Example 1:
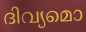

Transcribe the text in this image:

ദിവ്യമൊ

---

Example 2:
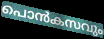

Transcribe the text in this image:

പൊൻകസവും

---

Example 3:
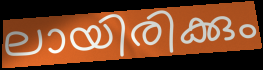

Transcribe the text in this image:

ലായിരിക്കും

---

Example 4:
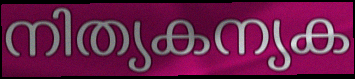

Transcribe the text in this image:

നിത്യകന്യക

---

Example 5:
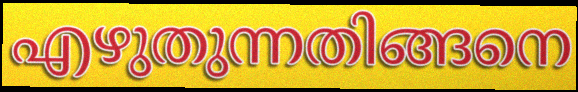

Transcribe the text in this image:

എഴുതുന്നതിങ്ങനെ